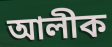
আলীক